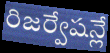
రిజర్వేషన్లే